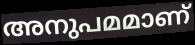
അനുപമമാണ്